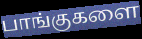
பாங்குகளை